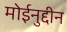
मोईनुद्दीन